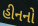
હીનનો